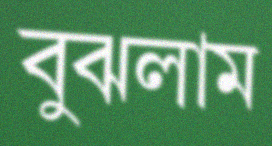
বুঝলাম